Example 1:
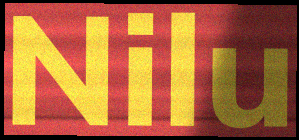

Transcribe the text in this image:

Nilu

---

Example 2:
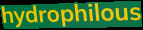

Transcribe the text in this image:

hydrophilous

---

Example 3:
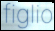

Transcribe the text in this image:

figlio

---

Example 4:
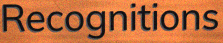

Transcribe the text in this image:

Recognitions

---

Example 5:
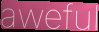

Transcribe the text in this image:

aweful